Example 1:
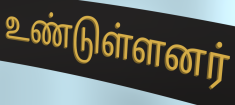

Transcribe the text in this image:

உண்டுள்ளனர்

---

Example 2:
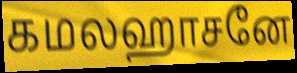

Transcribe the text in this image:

கமலஹாசனே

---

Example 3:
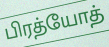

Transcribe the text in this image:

பிரத்யோத்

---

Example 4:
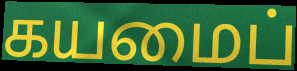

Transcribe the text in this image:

கயமைப்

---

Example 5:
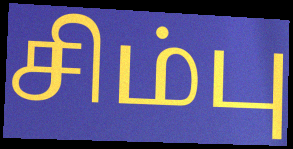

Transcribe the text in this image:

சிம்பு